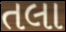
તલા